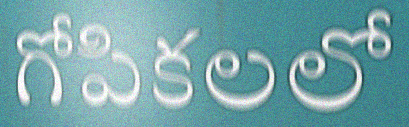
గోపికలలో